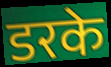
डरके